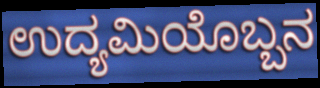
ಉದ್ಯಮಿಯೊಬ್ಬನ